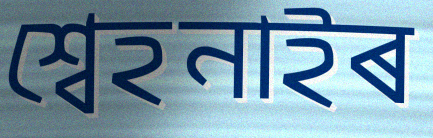
শ্বেহনাইৰ